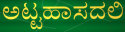
ಅಟ್ಟಹಾಸದಲಿ